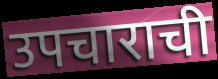
उपचाराची